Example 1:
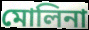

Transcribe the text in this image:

মোলিনা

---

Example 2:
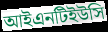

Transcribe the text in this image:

আইএনটিইউসি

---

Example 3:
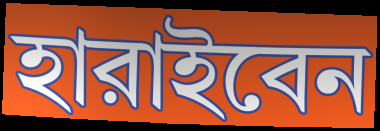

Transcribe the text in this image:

হারাইবেন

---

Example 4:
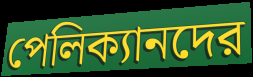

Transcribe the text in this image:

পেলিক্যানদের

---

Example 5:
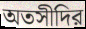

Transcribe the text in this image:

অতসীদির